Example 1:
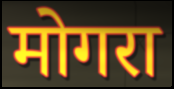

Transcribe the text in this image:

मोगरा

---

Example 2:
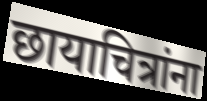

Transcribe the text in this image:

छायाचित्रांना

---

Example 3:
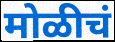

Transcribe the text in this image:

मोळीचं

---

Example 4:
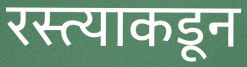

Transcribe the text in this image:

रस्त्याकडून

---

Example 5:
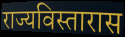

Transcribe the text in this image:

राज्यविस्तारास